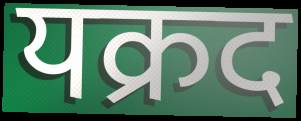
यक्रद